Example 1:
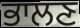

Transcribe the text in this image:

ਭਾਲਣ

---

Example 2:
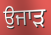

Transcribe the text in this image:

ਉੁਜਾੜ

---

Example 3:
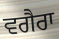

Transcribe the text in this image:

ਵਗੈਰਾ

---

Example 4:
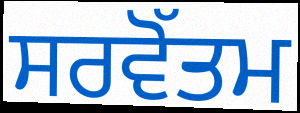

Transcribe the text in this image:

ਸਰਵੋੱਤਮ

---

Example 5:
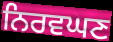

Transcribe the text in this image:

ਨਿਰਵਘਣ